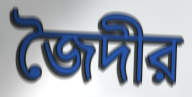
জৈদীর